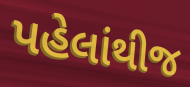
પહેલાંથીજ